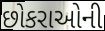
છોકરાઓની